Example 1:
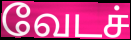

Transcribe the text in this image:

வேடச்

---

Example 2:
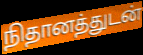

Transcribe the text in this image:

நிதானத்துடன்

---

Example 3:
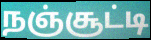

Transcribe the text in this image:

நஞ்சூட்டி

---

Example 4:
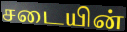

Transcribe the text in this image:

சடையின்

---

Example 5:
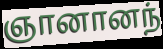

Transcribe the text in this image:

ஞானானந்